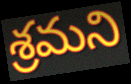
శ్రమని